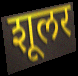
शूलर